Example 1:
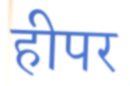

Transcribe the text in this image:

हीपर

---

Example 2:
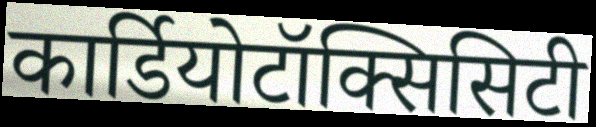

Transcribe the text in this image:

कार्डियोटॉक्सिसिटी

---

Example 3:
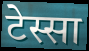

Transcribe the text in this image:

टेस्सा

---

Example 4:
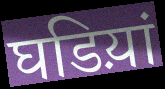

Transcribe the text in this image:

घडिय़ां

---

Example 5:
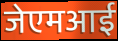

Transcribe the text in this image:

जेएमआई